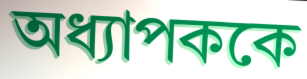
অধ্যাপককে